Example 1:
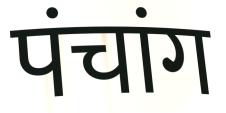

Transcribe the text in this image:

पंचांग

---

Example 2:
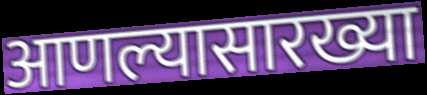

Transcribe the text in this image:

आणल्यासारख्या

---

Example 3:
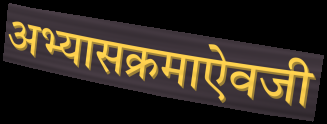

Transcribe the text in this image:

अभ्यासक्रमाऐवजी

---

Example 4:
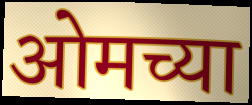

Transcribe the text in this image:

ओमच्या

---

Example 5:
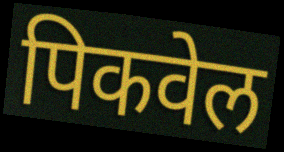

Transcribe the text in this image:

पिकवेल